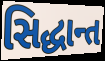
સિદ્ધાન્ત